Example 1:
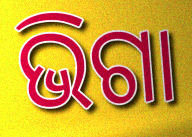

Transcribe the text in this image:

ଭିଗା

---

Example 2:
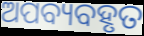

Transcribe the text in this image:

ଅପବ୍ୟବହୃତ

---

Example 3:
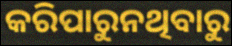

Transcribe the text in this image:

କରିପାରୁନଥିବାରୁ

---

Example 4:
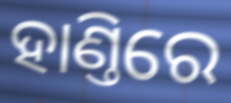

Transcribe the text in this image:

ହାଣ୍ତିରେ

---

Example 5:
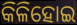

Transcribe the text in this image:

କିଳିହୋଇ